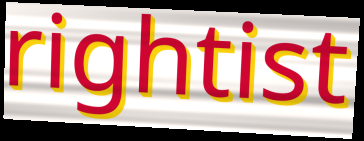
rightist